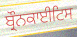
ਬ੍ਰੌਨਕਾਈਟਿਸ